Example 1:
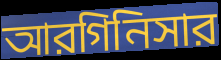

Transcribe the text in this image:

আরগিনিসার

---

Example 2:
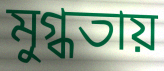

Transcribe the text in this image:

মুগ্ধতায়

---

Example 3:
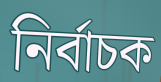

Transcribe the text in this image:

নির্বাচক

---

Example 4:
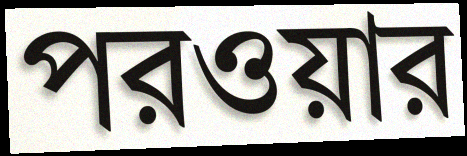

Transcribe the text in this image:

পরওয়ার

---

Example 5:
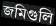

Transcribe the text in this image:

জমিগুলি